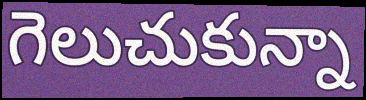
గెలుచుకున్నా